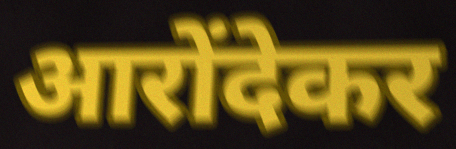
आरोंदेकर